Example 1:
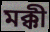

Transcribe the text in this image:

মক্কী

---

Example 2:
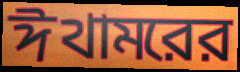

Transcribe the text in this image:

ঈথামরের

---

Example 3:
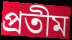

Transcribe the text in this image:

প্রতীম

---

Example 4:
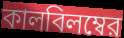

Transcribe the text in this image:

কালবিলম্বের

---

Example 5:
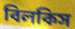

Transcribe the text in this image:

বিলকিস